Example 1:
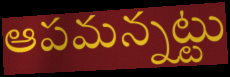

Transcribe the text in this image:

ఆపమన్నట్టు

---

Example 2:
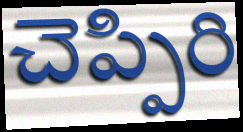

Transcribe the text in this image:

చెప్పిరి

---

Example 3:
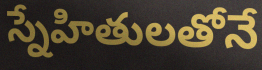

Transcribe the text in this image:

స్నేహితులతోనే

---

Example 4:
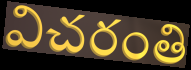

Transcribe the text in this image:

విచరంతి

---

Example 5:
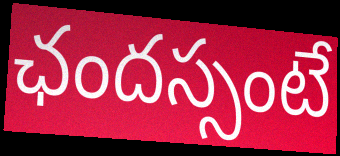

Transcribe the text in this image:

ఛందస్సంటే